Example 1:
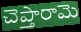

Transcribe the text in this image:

చెప్తారామె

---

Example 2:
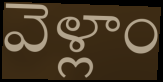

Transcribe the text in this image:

వెళ్లాం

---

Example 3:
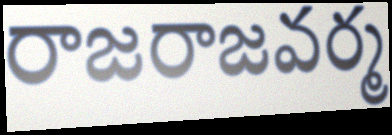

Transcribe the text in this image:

రాజరాజవర్మ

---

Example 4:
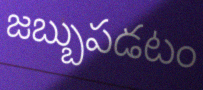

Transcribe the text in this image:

జబ్బుపడటం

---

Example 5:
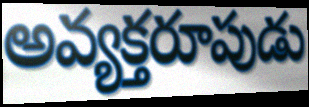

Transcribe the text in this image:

అవ్యక్తరూపుడు